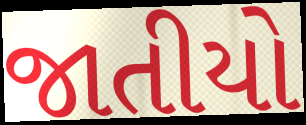
જાતીયો